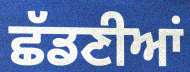
ਛੱਡਣੀਆਂ